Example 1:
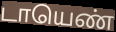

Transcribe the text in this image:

டாயெண்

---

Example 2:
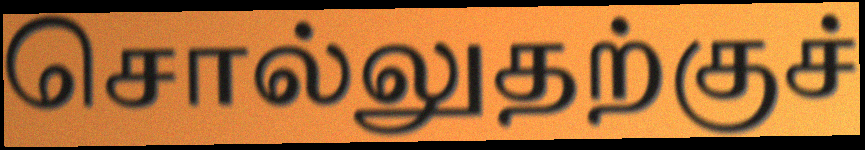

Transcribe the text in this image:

சொல்லுதற்குச்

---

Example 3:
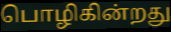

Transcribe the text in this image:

பொழிகின்றது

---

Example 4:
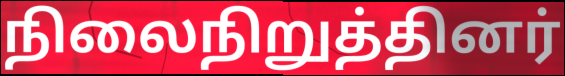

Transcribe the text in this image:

நிலைநிறுத்தினர்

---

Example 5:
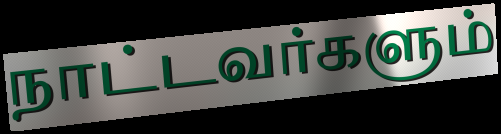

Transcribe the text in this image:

நாட்டவர்களும்